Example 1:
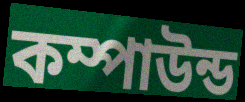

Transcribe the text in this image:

কম্পাউন্ড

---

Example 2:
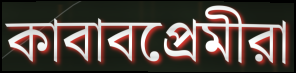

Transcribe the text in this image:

কাবাবপ্রেমীরা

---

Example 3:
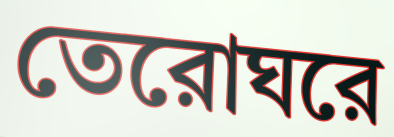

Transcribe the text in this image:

তেরোঘরে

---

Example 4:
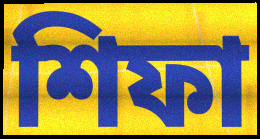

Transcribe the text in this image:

শিফা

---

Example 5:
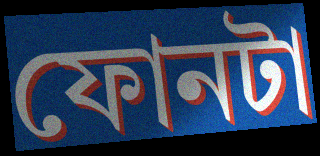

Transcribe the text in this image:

ফোনটা